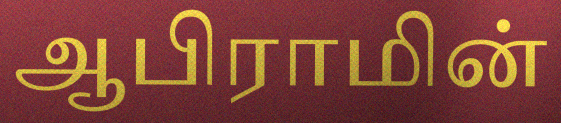
ஆபிராமின்